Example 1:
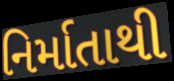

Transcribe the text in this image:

નિર્માતાથી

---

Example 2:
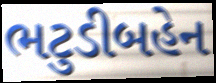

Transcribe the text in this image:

ભટુડીબહેન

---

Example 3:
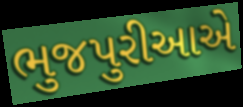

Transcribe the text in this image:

ભુજપુરીઆએ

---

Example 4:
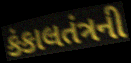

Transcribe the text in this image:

કંકાલતંત્રની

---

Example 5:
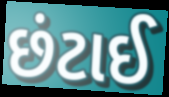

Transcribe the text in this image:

છંટાઈ